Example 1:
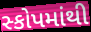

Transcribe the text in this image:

સ્કોપમાંથી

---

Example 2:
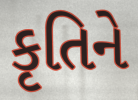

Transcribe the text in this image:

કૃતિને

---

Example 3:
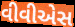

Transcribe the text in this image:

વીવીએસ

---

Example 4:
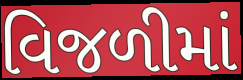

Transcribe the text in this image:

વિજળીમાં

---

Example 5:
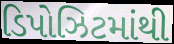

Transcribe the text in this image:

ડિપોઝિટમાંથી